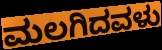
ಮಲಗಿದವಳು